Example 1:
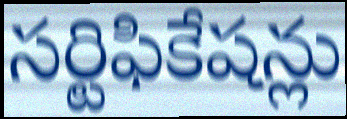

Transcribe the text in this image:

సర్టిఫికేషన్లు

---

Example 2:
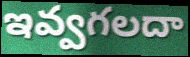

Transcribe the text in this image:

ఇవ్వగలదా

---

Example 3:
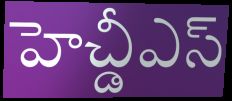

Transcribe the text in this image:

హెచ్డీఎస్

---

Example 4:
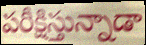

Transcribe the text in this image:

పరీక్షిస్తున్నాడా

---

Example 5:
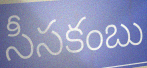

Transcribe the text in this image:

సీసకంబు